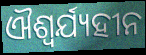
ଐଶ୍ୱର୍ଯ୍ୟହୀନ